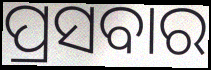
ପ୍ରସବାର